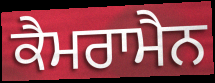
ਕੈਮਰਾਮੈਨ